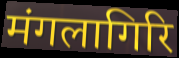
मंगलागिरि